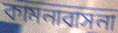
কামনাবাসনা